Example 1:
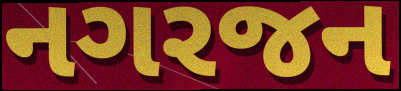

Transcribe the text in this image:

નગરજન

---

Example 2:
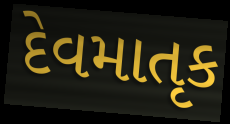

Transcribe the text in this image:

દેવમાતૃક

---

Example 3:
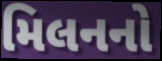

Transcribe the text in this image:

મિલનનો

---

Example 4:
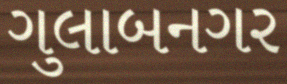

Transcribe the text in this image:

ગુલાબનગર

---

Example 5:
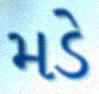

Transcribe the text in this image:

મડે